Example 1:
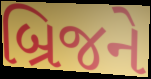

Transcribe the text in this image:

બ્રિજને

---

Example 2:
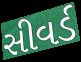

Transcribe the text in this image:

સીવર્ડ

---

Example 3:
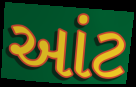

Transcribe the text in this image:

આંટ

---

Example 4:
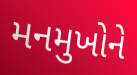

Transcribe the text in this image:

મનમુખોને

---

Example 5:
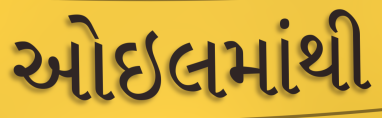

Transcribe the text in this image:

ઓઇલમાંથી